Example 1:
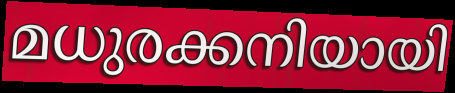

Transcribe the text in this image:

മധുരക്കനിയായി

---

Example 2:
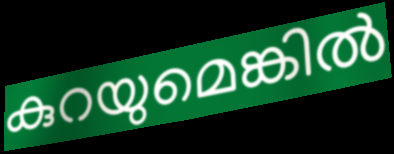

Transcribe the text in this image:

കുറയുമെങ്കിൽ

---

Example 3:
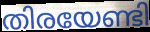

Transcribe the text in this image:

തിരയേണ്ടി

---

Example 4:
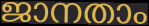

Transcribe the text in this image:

ജാനതാം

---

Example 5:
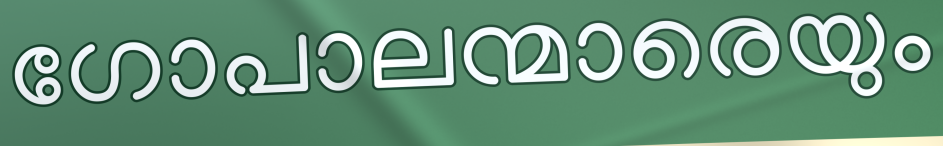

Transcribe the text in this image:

ഗോപാലന്മാരെയും